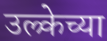
उल्केच्या